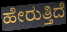
ಹೇರುತ್ತಿದೆ